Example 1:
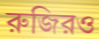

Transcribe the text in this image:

রুজিরও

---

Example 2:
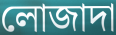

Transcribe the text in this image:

লোজাদা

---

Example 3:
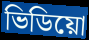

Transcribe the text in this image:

ভিডিয়ো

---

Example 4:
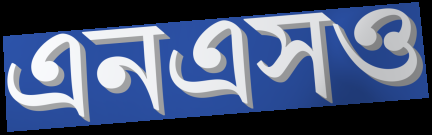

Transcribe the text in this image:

এনএসও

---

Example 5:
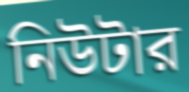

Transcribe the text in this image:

নিউটার